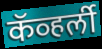
कॅव्हर्ली